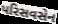
પરિસવસેન